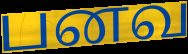
பனவ